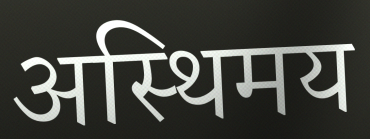
अस्थिमय